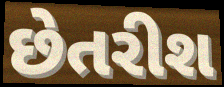
છેતરીશ